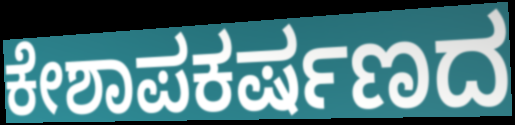
ಕೇಶಾಪಕರ್ಷಣದ